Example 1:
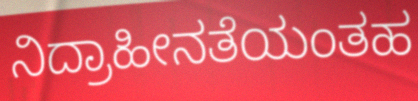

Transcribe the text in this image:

ನಿದ್ರಾಹೀನತೆಯಂತಹ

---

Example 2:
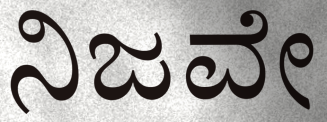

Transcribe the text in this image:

ನಿಜವೇ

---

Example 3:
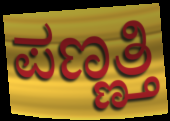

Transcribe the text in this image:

ಪಣ್ಣತ್ತಿ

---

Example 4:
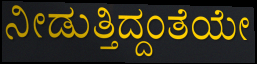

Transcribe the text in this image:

ನೀಡುತ್ತಿದ್ದಂತೆಯೇ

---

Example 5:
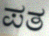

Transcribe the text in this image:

ಪತ